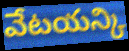
వేటయన్కి